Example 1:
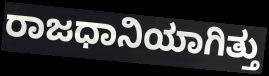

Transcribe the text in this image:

ರಾಜಧಾನಿಯಾಗಿತ್ತು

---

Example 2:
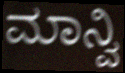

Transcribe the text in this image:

ಮಾನ್ವಿ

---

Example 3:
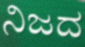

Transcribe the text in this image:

ನಿಜದ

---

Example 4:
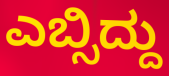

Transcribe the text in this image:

ಎಬ್ಸಿದ್ದು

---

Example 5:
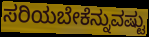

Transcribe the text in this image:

ಸರಿಯಬೇಕೆನ್ನುವಷ್ಟು